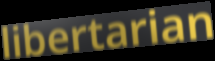
libertarian